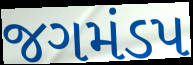
જગમંડપ